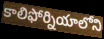
కాలిఫోర్నియాలోని